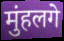
मुंहलगे